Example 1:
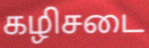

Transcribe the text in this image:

கழிசடை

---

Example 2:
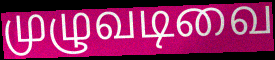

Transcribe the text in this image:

முழுவடிவை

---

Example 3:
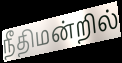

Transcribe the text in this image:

நீதிமன்றில்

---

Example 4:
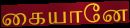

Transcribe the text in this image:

கையானே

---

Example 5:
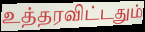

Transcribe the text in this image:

உத்தரவிட்டதும்